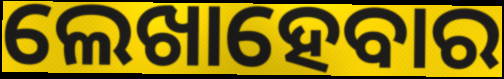
ଲେଖାହେବାର